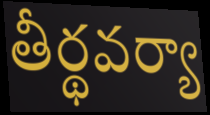
తీర్థవర్యా